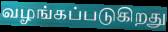
வழங்கப்படுகிறது